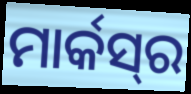
ମାର୍କସ୍‍ର